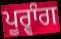
ਪੂਰ੍ਵਾੰਗ